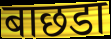
बाछडा